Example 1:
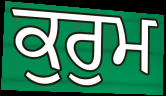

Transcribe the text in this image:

ਕੁਰੁਮ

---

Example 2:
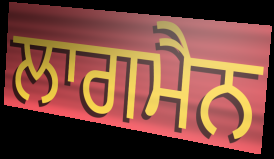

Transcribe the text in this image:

ਲਾਗਮੈਨ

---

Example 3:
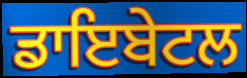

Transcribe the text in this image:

ਡਾਇਬੇਟਲ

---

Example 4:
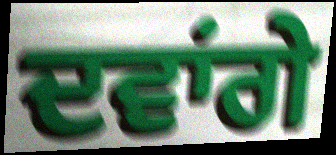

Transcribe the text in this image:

ਦਵਾਂਗੇ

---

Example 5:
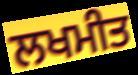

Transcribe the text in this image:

ਲਖਮੀਤ